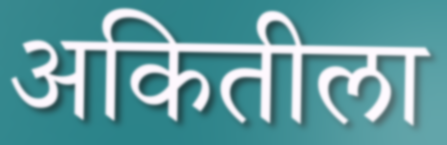
अकितीला